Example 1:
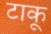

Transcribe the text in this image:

टाकू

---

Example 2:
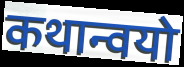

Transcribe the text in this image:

कथान्वयो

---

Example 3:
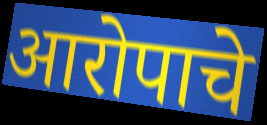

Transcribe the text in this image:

आरोपाचे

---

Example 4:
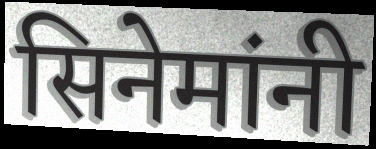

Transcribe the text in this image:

सिनेमांनी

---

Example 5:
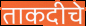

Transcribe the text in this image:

ताकदीचे